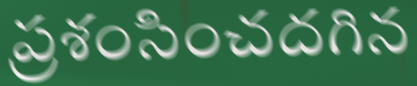
ప్రశంసించదగిన